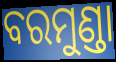
ବରମୁଣ୍ଡା